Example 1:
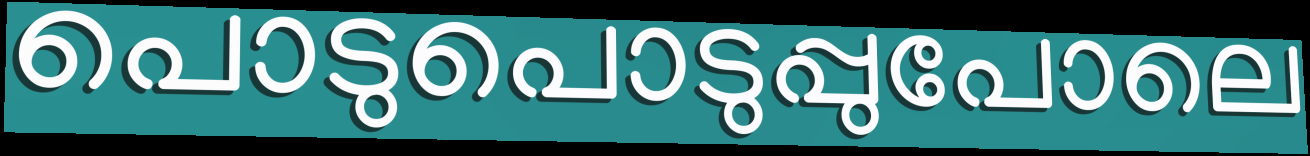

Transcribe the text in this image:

പൊടുപൊടുപ്പുപോലെ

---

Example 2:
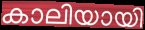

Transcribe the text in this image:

കാലിയായി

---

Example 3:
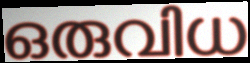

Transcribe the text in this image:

ഒരുവിധ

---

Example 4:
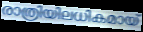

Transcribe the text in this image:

രാത്രിയിലധികമായ്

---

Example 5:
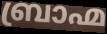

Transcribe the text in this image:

ബ്രാഹ്മ